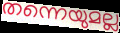
തന്നെയുമല്ല